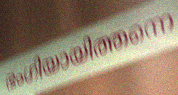
ഭംഗിയായിത്തന്നെ